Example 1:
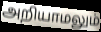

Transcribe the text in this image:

அறியாமலும்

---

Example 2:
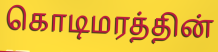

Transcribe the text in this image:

கொடிமரத்தின்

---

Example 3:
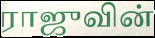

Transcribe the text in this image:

ராஜுவின்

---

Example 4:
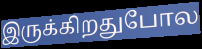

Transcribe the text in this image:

இருக்கிறதுபோல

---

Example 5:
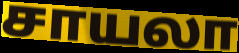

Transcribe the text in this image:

சாயலா